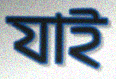
যাই